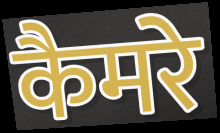
कैमरे